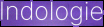
Indologie